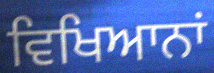
ਵਿਖਿਆਨਾਂ